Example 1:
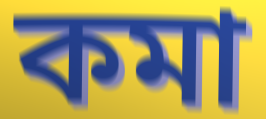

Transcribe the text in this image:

কমা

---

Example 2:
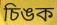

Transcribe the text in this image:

চিঙক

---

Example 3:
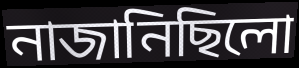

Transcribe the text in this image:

নাজানিছিলো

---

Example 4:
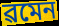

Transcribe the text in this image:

ৱমেন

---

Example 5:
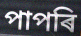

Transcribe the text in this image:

পাপৰি